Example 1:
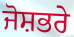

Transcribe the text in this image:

ਜੋਸ਼ਭਰੇ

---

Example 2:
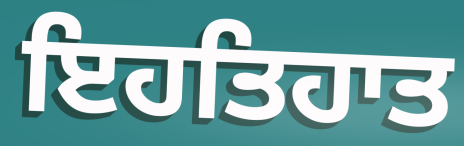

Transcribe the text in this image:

ਇਹਤਿਹਾਤ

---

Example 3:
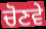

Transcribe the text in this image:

ਚੋਣਵੇ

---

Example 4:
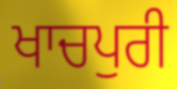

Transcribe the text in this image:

ਖਾਚਪੁਰੀ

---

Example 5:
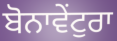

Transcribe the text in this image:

ਬੋਨਾਵੇਂਟੁਰਾ